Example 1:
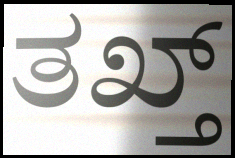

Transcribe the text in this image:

ತಖ್ತ್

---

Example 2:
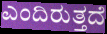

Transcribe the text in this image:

ಎಂದಿರುತ್ತದೆ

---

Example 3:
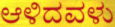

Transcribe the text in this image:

ಆಳಿದವಳು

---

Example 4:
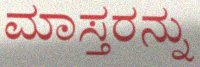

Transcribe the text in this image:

ಮಾಸ್ತರನ್ನು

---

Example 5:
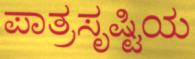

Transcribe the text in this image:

ಪಾತ್ರಸೃಷ್ಟಿಯ